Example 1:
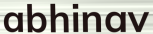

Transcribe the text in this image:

abhinav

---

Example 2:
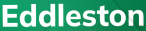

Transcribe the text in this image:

Eddleston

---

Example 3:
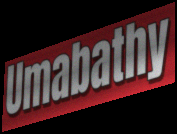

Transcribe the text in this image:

Umabathy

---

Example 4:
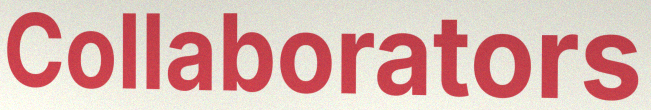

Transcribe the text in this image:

Collaborators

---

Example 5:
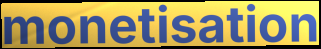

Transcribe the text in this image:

monetisation